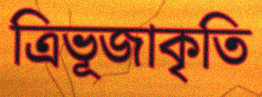
ত্রিভূজাকৃতি